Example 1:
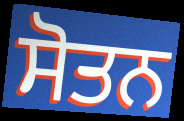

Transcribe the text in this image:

ਸੋਤਨ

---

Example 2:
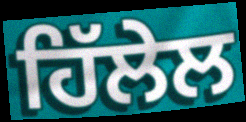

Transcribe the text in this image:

ਹਿੱਲੇਲ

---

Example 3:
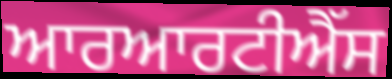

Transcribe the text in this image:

ਆਰਆਰਟੀਐੱਸ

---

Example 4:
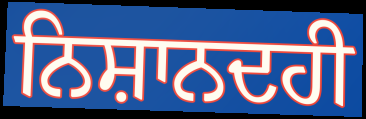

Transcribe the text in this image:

ਨਿਸ਼ਾਨਦਹੀ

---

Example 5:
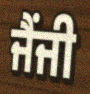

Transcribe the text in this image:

ਜੈਂਜੀ